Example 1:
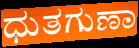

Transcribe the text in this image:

ಧುತಗುಣಾ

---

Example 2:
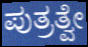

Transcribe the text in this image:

ಪುತ್ರತ್ವೇ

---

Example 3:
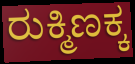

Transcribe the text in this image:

ರುಕ್ಮಿಣಕ್ಕ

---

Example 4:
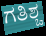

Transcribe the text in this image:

ಗತಿಶ್ಚ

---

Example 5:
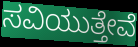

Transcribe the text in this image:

ಸವಿಯುತ್ತೇವೆ